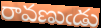
రావణుఁడు